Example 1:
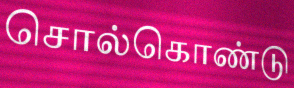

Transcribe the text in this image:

சொல்கொண்டு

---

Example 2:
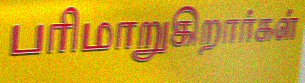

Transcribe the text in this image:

பரிமாறுகிறார்கள்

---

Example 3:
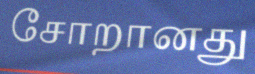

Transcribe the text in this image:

சோறானது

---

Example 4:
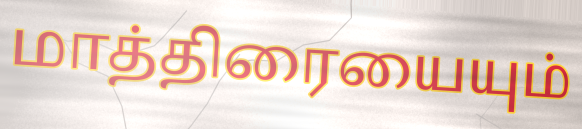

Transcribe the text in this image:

மாத்திரையையும்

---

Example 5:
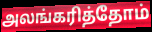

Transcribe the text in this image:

அலங்கரித்தோம்